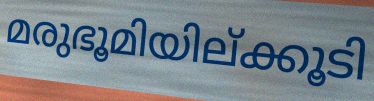
മരുഭൂമിയില്ക്കൂടി